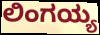
ಲಿಂಗಯ್ಯ